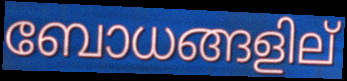
ബോധങ്ങളില്